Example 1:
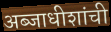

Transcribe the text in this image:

अब्जाधीशांची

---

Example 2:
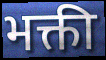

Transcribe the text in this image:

भक्ती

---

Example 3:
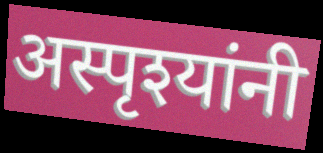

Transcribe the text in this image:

अस्पृश्यांनी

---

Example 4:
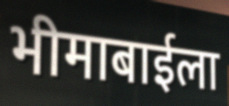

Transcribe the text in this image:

भीमाबाईला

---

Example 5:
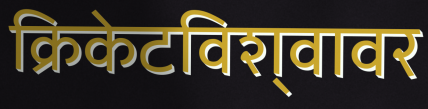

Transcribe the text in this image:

क्रिकेटविश्वावर